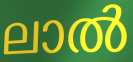
ലാൽ